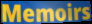
Memoirs